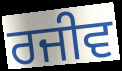
ਰਜੀਵ